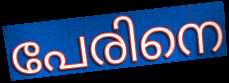
പേരിനെ